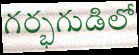
గర్భగుడిలో